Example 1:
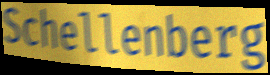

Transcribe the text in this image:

Schellenberg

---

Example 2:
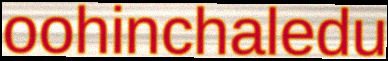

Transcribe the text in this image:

oohinchaledu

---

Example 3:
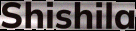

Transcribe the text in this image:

Shishila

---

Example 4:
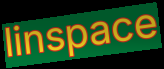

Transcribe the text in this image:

linspace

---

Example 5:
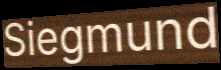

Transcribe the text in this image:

Siegmund